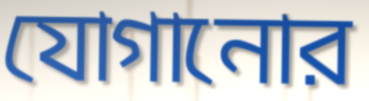
যোগানোর